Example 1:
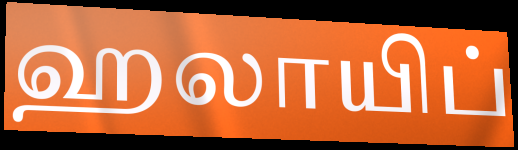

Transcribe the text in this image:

ஹலாயிப்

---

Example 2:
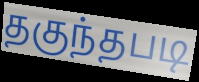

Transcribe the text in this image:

தகுந்தபடி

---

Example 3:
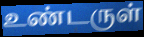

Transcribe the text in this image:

உண்டருள்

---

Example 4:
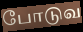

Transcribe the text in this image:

போடுவ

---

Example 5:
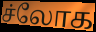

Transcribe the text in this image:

ச்லோக